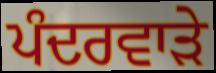
ਪੰਦਰਵਾੜੇ